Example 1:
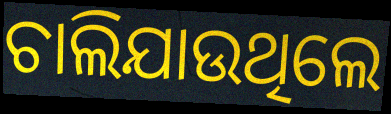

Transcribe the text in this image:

ଚାଲିଯାଉଥିଲେ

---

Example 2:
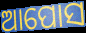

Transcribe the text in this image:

ଆପୋସ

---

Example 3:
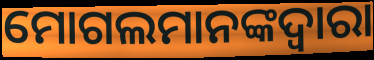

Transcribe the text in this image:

ମୋଗଲମାନଙ୍କଦ୍ୱାରା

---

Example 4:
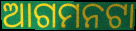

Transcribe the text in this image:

ଆଗମନଟା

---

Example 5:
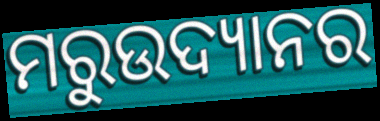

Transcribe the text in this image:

ମରୁଉଦ୍ୟାନର